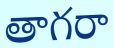
తాగరా